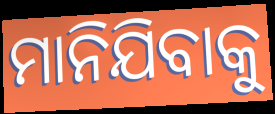
ମାନିଯିବାକୁ